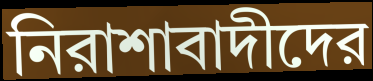
নিরাশাবাদীদের